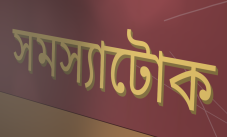
সমস্যাটোক